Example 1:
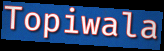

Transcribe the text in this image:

Topiwala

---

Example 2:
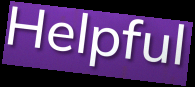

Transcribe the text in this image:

Helpful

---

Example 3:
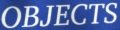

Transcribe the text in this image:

OBJECTS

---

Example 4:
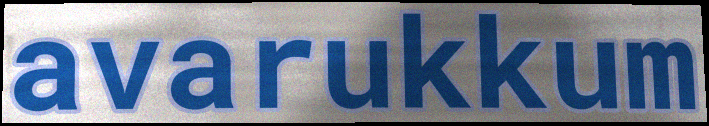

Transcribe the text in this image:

avarukkum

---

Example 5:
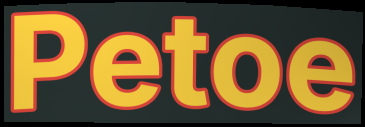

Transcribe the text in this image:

Petoe